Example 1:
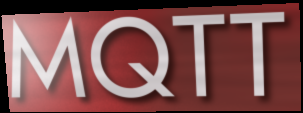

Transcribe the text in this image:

MQTT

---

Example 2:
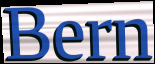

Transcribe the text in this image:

Bern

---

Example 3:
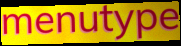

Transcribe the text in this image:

menutype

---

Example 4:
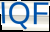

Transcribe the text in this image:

IQF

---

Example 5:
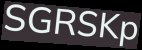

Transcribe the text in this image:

SGRSKp